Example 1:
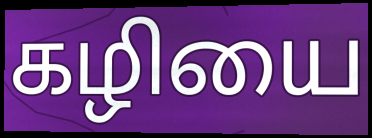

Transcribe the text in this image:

கழியை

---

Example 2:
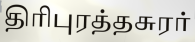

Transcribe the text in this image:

திரிபுரத்தசுரர்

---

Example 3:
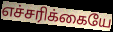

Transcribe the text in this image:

எச்சரிக்கையே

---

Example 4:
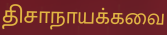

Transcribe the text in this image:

திசாநாயக்கவை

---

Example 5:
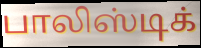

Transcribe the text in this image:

பாலிஸ்டிக்